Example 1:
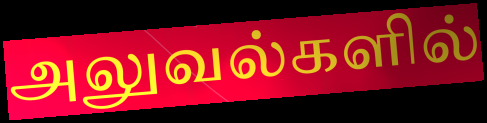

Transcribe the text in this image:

அலுவல்களில்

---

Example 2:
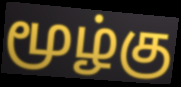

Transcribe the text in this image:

மூழ்கு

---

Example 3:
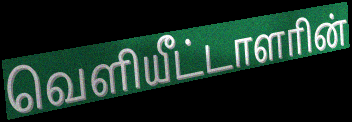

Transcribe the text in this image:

வெளியீட்டாளரின்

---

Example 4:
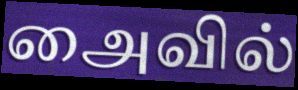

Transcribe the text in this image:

அைவில்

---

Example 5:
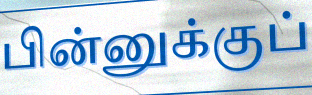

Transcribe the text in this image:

பின்னுக்குப்